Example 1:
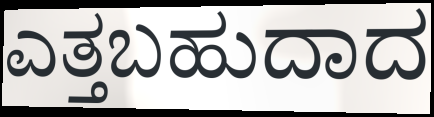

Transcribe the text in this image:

ಎತ್ತಬಹುದಾದ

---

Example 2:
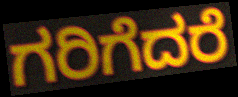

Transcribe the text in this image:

ಗರಿಗೆದರೆ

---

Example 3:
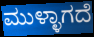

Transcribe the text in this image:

ಮುಳ್ಳಾಗದೆ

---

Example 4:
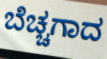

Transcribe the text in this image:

ಬೆಚ್ಚಗಾದ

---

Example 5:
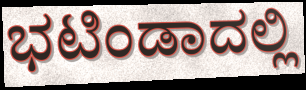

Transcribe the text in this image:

ಭಟಿಂಡಾದಲ್ಲಿ